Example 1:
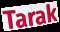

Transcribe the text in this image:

Tarak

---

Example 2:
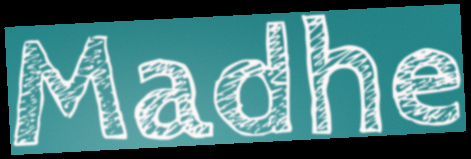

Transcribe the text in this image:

Madhe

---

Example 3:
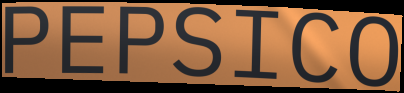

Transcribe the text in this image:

PEPSICO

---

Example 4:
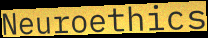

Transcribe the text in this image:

Neuroethics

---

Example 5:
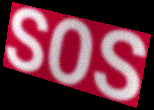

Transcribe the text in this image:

SOS